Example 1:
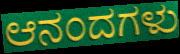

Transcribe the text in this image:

ಆನಂದಗಳು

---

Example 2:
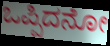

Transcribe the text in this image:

ಒಪ್ಪಿದನೋ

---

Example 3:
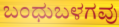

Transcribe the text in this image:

ಬಂಧುಬಳಗವು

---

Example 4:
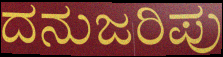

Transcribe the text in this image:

ದನುಜರಿಪು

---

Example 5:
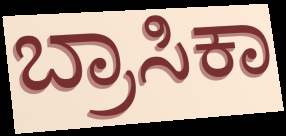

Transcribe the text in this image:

ಬ್ರಾಸಿಕಾ